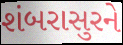
શંબરાસુરને